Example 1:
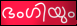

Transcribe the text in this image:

ഭംഗിയും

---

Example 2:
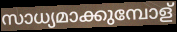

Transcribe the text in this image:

സാധ്യമാക്കുമ്പോള്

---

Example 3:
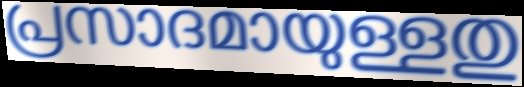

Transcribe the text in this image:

പ്രസാദമായുള്ളതു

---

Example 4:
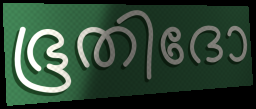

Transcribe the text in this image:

ഭൂതിദോ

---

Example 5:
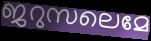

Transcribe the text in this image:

ജറുസലെമേ